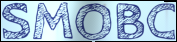
SMOBC